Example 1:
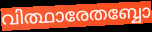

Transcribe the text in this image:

വിത്ഥാരേതബ്ബോ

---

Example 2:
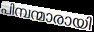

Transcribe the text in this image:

പിമ്പന്മാരായി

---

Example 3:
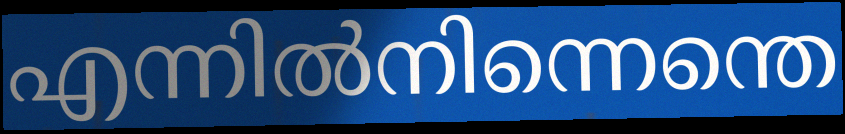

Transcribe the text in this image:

എന്നിൽനിന്നെന്തെ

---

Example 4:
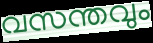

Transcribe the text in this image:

വസന്തവും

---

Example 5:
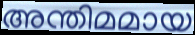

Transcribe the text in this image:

അന്തിമമായ